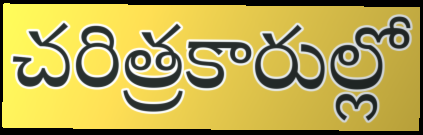
చరిత్రకారుల్లో